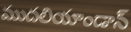
ముదలియాండాన్